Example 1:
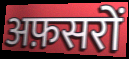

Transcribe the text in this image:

अफ़सरों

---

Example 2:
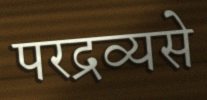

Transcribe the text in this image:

परद्रव्यसे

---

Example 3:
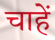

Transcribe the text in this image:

चाहें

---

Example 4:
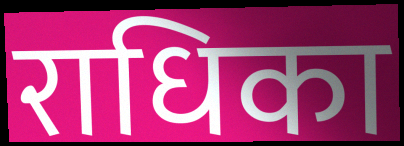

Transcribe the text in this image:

राधिका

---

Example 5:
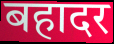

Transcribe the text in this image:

बहादर